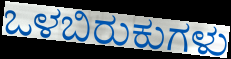
ಒಳಬಿರುಕುಗಳು